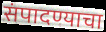
संपादण्याचा